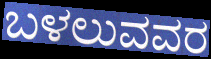
ಬಳಲುವವರ